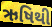
ઋષિથી